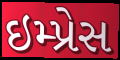
ઇમ્પ્રેસ